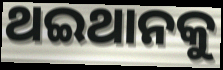
ଥଇଥାନକୁ